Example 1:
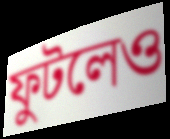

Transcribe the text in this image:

ফুটলেও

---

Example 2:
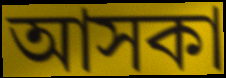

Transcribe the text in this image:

আসকা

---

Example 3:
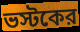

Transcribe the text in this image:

ভস্টকের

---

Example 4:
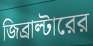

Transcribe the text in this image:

জিব্রাল্টারের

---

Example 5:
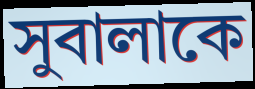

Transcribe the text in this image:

সুবালাকে